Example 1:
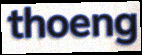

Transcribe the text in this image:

thoeng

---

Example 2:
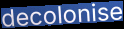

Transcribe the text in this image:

decolonise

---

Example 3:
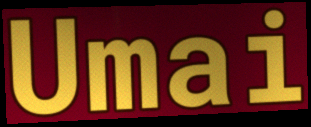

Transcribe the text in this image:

Umai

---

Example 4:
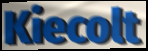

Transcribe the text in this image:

Kiecolt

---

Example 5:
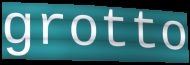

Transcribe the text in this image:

grotto